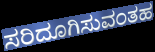
ಸರಿದೂಗಿಸುವಂತಹ